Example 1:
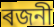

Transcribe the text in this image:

ৰজনী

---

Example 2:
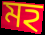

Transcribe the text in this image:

মহ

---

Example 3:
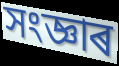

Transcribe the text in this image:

সংজ্ঞাৰ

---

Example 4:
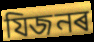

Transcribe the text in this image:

যিজনৰ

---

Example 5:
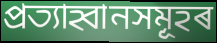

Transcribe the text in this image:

প্ৰত্যাহ্বানসমূহৰ